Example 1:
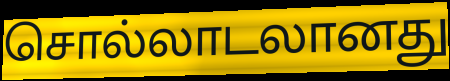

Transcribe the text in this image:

சொல்லாடலானது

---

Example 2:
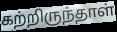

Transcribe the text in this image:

கற்றிருந்தாள்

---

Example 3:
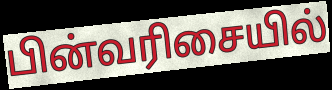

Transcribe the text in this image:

பின்வரிசையில்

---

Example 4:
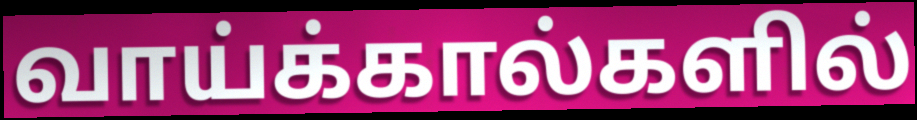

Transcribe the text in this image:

வாய்க்கால்களில்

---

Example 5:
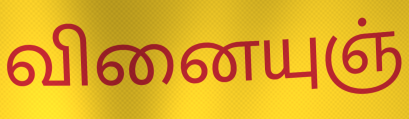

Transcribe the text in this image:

வினையுஞ்